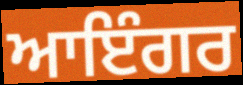
ਆਇੰਗਰ